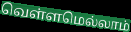
வெள்ளமெல்லாம்